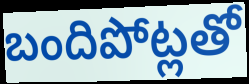
బందిపోట్లతో